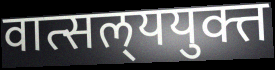
वात्सल्ययुक्त